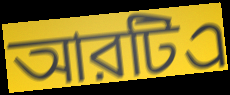
আরটিএ